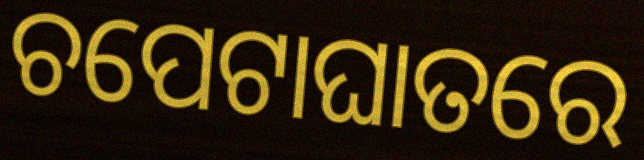
ଚପେଟାଘାତରେ